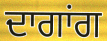
ਦਾਗਾਂਗ